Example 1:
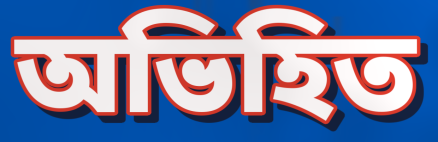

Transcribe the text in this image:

অভিহিত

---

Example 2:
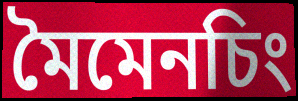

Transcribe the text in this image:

মৈমেনচিং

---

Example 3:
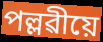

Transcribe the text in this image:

পল্লৱীয়ে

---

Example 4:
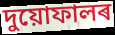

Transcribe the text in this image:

দুয়োফালৰ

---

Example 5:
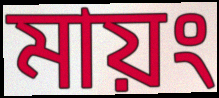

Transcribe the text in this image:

মায়ং